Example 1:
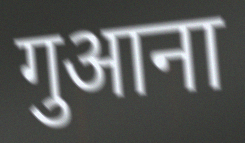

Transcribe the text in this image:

गुआना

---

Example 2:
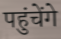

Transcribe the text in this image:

पहुंचेंगे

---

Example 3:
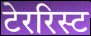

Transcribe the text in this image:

टेररिस्ट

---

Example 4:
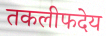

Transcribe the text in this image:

तकलीफदेय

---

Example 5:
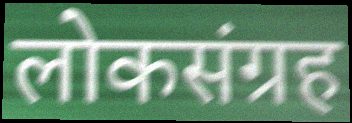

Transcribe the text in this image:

लोकसंग्रह